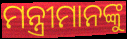
ମନ୍ତ୍ରୀମାନଙ୍କୁ